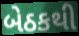
બેઠકથી